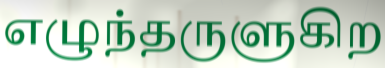
எழுந்தருளுகிற